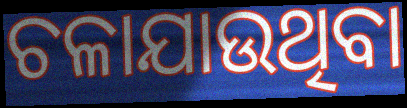
ଚଳାଯାଉଥିବା